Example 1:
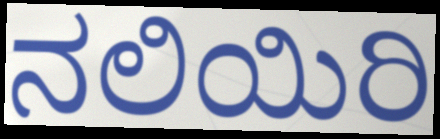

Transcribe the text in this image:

ನಲಿಯಿರಿ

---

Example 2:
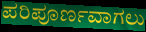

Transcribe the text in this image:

ಪರಿಪೂರ್ಣವಾಗಲು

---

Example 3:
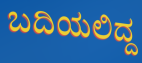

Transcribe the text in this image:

ಬದಿಯಲಿದ್ದ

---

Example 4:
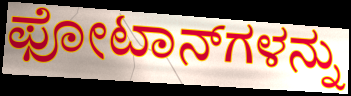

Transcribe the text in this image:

ಫೋಟಾನ್‌ಗಳನ್ನು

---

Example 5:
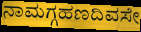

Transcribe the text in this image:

ನಾಮಗ್ಗಹಣದಿವಸೇ